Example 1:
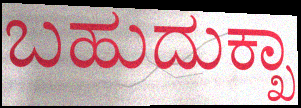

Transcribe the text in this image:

ಬಹುದುಕ್ಖಾ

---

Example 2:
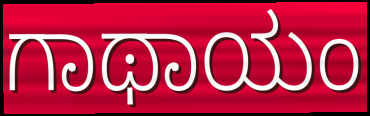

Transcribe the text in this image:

ಗಾಥಾಯಂ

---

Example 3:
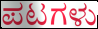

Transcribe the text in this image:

ಪಟಗಳು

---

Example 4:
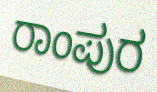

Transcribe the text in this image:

ರಾಂಪುರ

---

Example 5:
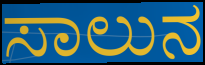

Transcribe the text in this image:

ಸಾಲುನ